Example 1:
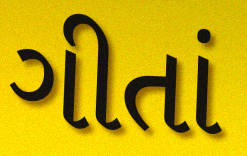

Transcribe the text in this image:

ગીતાં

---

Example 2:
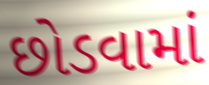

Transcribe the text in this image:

છોડવામાં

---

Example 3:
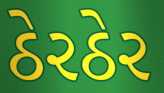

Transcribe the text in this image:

ઠેરઠેર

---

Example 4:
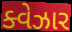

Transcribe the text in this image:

ક્વેઝાર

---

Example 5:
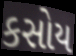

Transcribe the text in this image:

કસોય